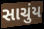
સાચુંય